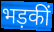
भड़कीं